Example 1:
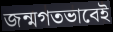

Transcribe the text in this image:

জন্মগতভাবেই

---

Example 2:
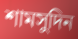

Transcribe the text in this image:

শামসুদিন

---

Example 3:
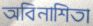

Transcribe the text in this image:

অবিনাশিতা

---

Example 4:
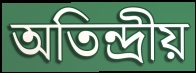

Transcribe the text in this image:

অতিন্দ্রীয়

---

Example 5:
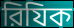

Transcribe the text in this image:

রিযিক